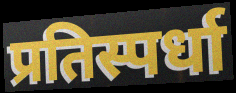
प्रतिस्पर्धा